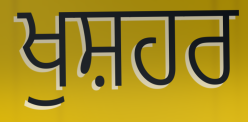
ਖੁਸ਼ਹਰ